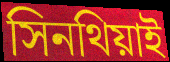
সিনথিয়াই